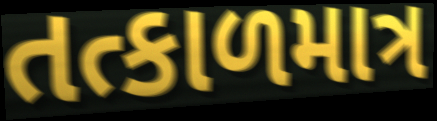
તત્કાળમાત્ર